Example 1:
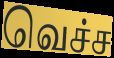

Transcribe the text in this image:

வெச்ச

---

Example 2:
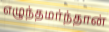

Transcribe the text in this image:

எழுந்தமர்ந்தான்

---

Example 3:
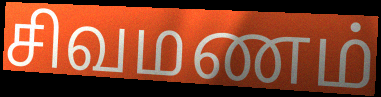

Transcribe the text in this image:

சிவமணம்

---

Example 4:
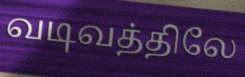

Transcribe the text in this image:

வடிவத்திலே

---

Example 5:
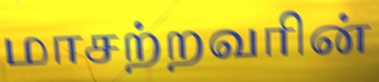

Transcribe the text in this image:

மாசற்றவரின்